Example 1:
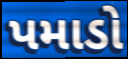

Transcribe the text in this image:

પમાડો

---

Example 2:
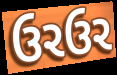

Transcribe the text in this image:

ઉરઉર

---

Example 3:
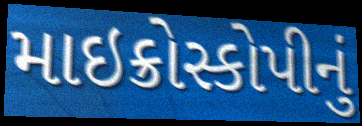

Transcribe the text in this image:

માઇક્રોસ્કોપીનું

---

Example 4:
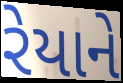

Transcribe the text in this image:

રેયાને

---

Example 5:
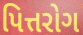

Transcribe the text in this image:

પિત્તરોગ